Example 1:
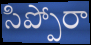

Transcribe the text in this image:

సిప్పోరా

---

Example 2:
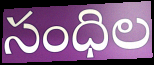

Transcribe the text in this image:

సంధిల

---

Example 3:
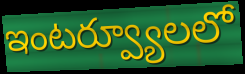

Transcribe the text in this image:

ఇంటర్వ్యూలలో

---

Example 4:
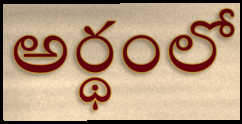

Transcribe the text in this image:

అర్థంలో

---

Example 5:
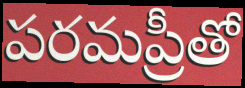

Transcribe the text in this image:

పరమప్రీతో